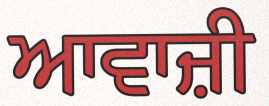
ਆਵਾਜ਼ੀ